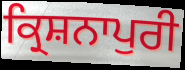
ਕ੍ਰਿਸ਼ਨਾਪੁਰੀ